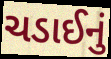
ચડાઈનું